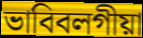
ভাবিবলগীয়া